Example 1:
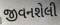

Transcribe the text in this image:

જીવનશેલી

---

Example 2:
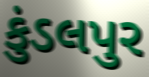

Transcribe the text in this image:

કુંડલપુર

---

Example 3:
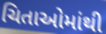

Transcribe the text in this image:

ચિતાઓમાંથી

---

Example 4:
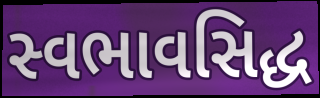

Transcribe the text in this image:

સ્વભાવસિદ્ધ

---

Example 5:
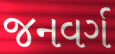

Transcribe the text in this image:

જનવર્ગ